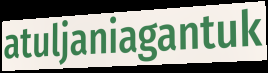
atuljaniagantuk